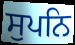
ਸੁਪਨਿ